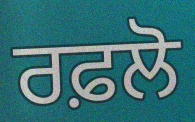
ਰਫ਼ਲੋ